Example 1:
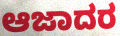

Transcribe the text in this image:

ಆಜಾದರ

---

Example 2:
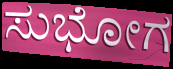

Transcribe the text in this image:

ಸುಭೋಗ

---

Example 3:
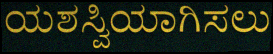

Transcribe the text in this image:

ಯಶಸ್ವಿಯಾಗಿಸಲು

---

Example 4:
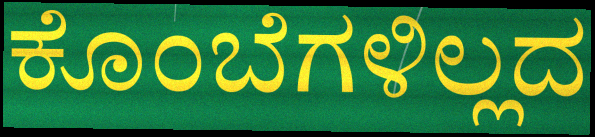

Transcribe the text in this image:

ಕೊಂಬೆಗಳಿಲ್ಲದ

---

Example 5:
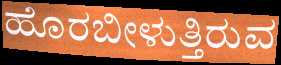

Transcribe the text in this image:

ಹೊರಬೀಳುತ್ತಿರುವ